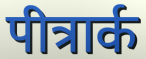
पीत्रार्क